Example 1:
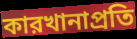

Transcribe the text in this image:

কারখানাপ্রতি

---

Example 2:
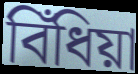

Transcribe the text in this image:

বিঁধিয়া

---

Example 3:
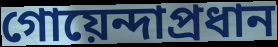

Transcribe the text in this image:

গোয়েন্দাপ্রধান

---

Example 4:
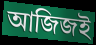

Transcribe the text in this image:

আজিজই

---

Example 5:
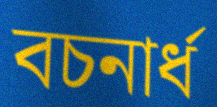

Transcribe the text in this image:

বচনার্ধ